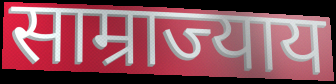
साम्राज्याय